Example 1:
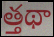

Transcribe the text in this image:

త్తథా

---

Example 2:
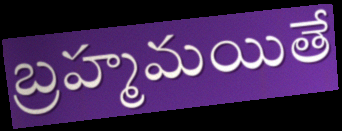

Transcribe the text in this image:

బ్రహ్మమయితే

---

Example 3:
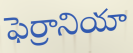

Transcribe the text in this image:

ఫెర్రానియా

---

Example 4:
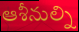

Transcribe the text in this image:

ఆశీనుల్ని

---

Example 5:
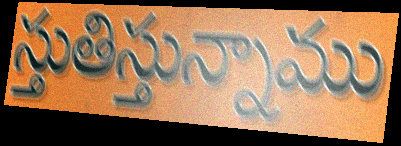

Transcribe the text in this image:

స్తుతిస్తున్నాము